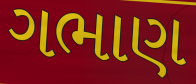
ગભાણ